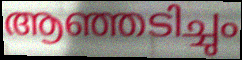
ആഞ്ഞടിച്ചും